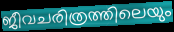
ജീവചരിത്രത്തിലെയും